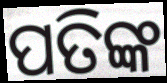
ପତିଙ୍କ